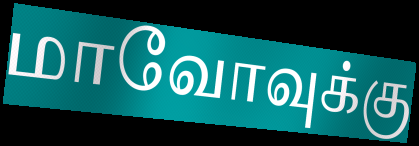
மாவோவுக்கு